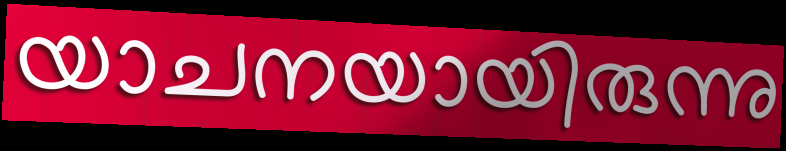
യാചനയായിരുന്നു